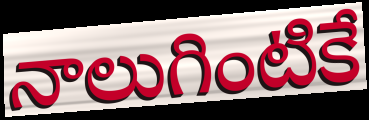
నాలుగింటికే